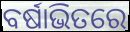
ବର୍ଷାଭିତରେ